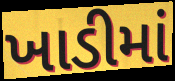
ખાડીમાં